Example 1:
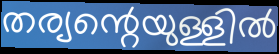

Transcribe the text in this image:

തര്യന്റെയുള്ളിൽ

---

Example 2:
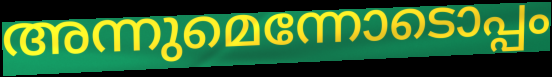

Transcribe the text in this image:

അന്നുമെന്നോടൊപ്പം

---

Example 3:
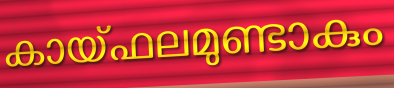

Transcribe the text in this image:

കായ്ഫലമുണ്ടാകും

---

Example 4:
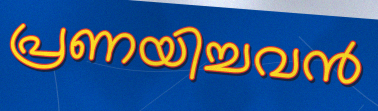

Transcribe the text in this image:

പ്രണയിച്ചവൻ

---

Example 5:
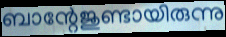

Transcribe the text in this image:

ബാന്റേജുണ്ടായിരുന്നു